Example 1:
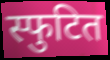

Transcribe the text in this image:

स्फुटित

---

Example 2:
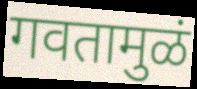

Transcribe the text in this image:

गवतामुळं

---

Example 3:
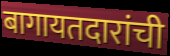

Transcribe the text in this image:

बागायतदारांची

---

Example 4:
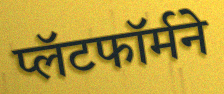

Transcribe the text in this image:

प्लॅटफॉर्मने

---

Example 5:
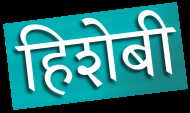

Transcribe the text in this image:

हिशेबी